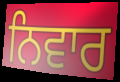
ਨਿਵਾਰ